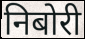
निबोरी